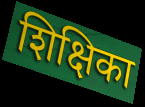
शिक्षिका